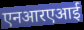
एनआरएआई